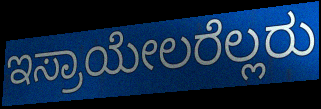
ಇಸ್ರಾಯೇಲರೆಲ್ಲರು